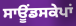
ਸਾਊਂਡਸਕੇਪਾਂ